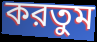
করতুম